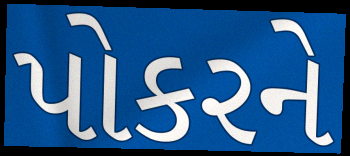
પોકરને